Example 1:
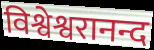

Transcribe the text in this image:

विश्वेश्वरानन्द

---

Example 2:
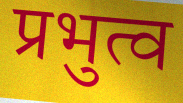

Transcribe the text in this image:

प्रभुत्व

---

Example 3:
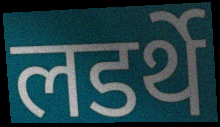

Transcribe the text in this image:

लडर्थे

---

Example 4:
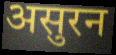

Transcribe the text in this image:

असुरन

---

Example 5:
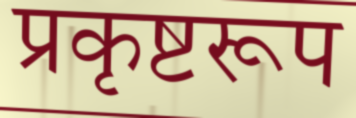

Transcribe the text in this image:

प्रकृष्टरूप